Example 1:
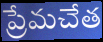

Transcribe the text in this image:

ప్రేమచేత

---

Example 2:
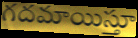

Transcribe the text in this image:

గదమాయిస్తూ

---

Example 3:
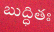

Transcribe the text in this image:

బుద్ధితః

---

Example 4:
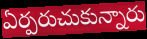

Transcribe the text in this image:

ఏర్పరుచుకున్నారు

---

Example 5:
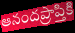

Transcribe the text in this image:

ఆనందప్రాప్తికి